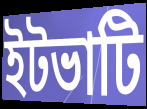
ইটভাটি